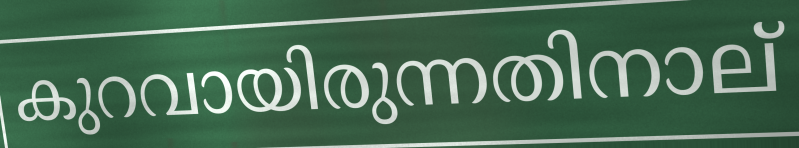
കുറവായിരുന്നതിനാല്